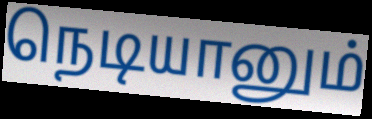
நெடியானும்